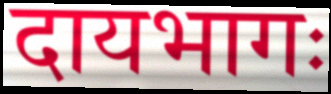
दायभागः